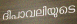
ദീപാവലിയുടെ